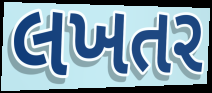
લખતર